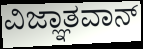
ವಿಜ್ಞಾತವಾನ್